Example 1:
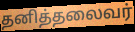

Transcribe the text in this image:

தனித்தலைவர்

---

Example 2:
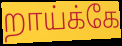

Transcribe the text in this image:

றாய்க்கே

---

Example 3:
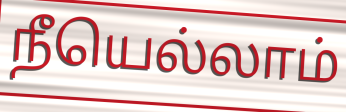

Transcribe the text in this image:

நீயெல்லாம்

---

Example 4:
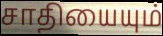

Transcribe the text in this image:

சாதியையும்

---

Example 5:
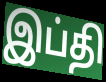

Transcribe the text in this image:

இப்தி